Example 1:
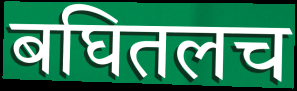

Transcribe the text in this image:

बघितलच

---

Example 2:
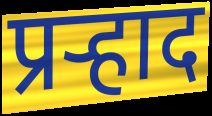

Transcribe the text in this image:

प्रर्‍हाद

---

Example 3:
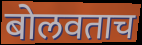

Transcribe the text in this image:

बोलवताच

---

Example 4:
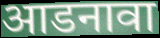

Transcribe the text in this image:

आडनावा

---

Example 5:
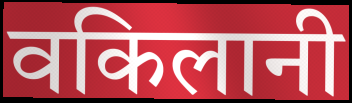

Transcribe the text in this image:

वकिलानी